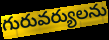
గురువర్యులను